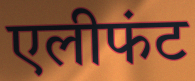
एलीफंट